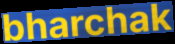
bharchak